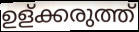
ഉള്ക്കരുത്ത്